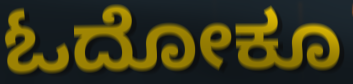
ಓದೋಕೂ